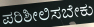
ಪರಿಶೀಲಿಸಬೇಕು